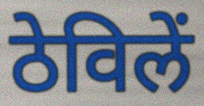
ठेविलें